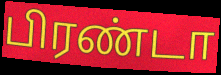
பிரண்டா